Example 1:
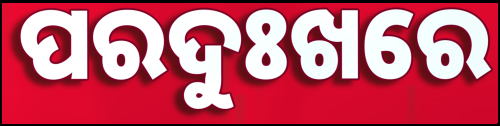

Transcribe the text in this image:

ପରଦୁଃଖରେ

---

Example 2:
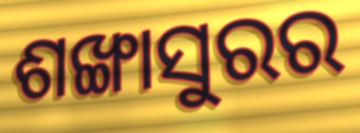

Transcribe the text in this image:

ଶଙ୍ଖାସୁରର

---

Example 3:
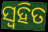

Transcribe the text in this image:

ସ୍ୱହିତ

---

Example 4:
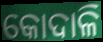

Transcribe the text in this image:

କୋଦାଳି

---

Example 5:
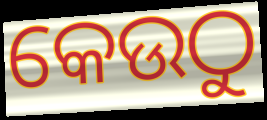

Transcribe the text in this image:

କେଉଠୁ